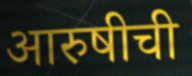
आरुषीची